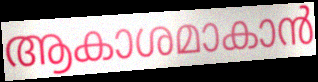
ആകാശമാകാൻ